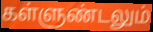
கள்ளுண்டலும்